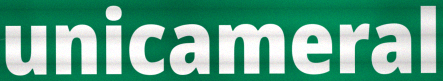
unicameral